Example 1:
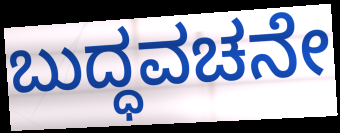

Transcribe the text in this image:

ಬುದ್ಧವಚನೇ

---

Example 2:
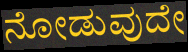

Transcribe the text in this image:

ನೋಡುವುದೇ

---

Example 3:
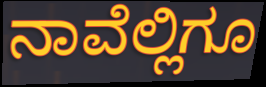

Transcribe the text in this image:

ನಾವೆಲ್ಲಿಗೂ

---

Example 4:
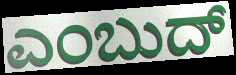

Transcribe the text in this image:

ಎಂಬುದ್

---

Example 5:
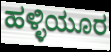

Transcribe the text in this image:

ಹಳ್ಳಿಯೂರ